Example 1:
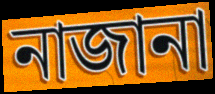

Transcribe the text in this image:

নাজানা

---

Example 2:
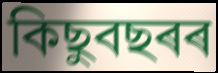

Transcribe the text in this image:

কিছুবছৰৰ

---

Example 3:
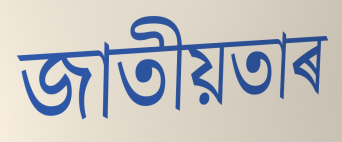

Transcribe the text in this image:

জাতীয়তাৰ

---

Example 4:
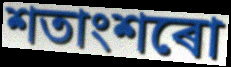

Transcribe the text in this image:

শতাংশৰো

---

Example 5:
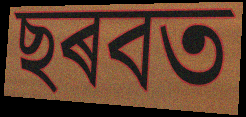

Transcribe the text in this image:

ছৰবত